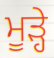
ਮੂੜ੍ਹੇ